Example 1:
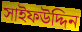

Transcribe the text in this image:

সাইফউদ্দিন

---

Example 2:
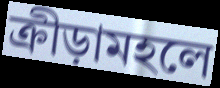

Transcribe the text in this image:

ক্রীড়ামহলে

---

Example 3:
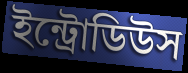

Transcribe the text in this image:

ইন্ট্রোডিউস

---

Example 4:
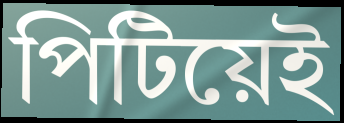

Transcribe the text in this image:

পিটিয়েই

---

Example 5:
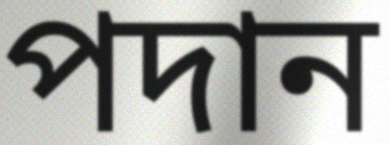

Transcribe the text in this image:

পদান